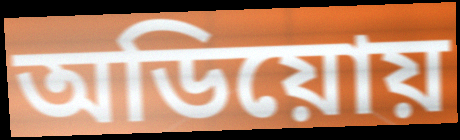
অডিয়োয়